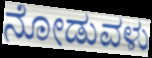
ನೋಡುವಳು